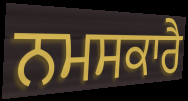
ਨਮਸਕਾਰੈ